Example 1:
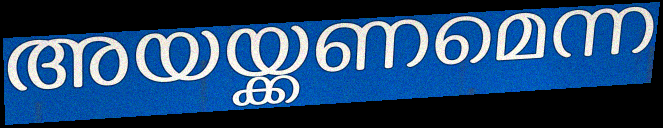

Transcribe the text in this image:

അയയ്ക്കണമെന്ന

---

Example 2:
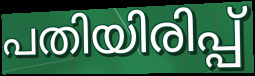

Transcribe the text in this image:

പതിയിരിപ്പ്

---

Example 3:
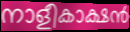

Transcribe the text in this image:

നാളീകാക്ഷൻ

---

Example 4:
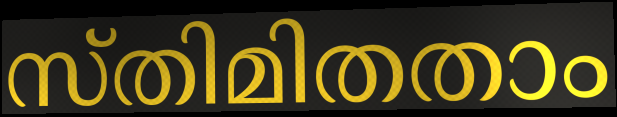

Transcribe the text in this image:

സ്തിമിതതാം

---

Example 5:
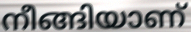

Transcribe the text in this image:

നീങ്ങിയാണ്